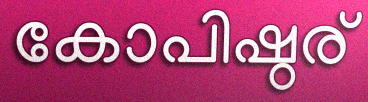
കോപിഷ്ഠര്